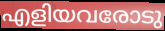
എളിയവരോടു